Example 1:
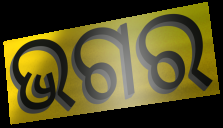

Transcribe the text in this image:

ଭଗର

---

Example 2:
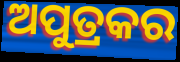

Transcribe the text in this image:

ଅପୁତ୍ରକର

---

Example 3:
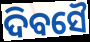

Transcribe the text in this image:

ଦିବସୈ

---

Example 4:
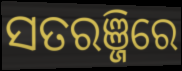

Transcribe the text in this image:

ସତରଞ୍ଜିରେ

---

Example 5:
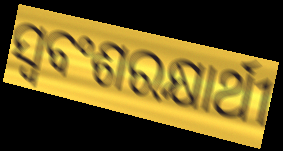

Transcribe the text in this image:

ସ୍ବବଂଶରକ୍ଷାର୍ଥୀ